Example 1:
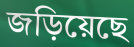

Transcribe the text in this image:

জড়িয়েছে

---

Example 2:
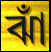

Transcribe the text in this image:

ঝাঁ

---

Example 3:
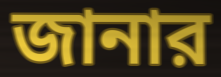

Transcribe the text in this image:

জানার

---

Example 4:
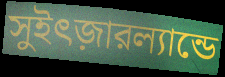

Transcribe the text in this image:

সুইৎজ়ারল্যান্ডে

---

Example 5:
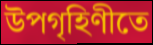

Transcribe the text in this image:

উপগৃহিণীতে